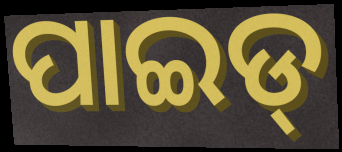
ପାଇଡ୍